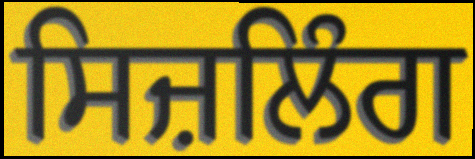
ਸਿਜ਼ਲਿੰਗ